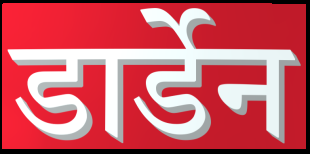
डार्डेन